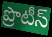
ప్రొటీస్